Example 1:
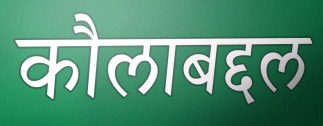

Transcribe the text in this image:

कौलाबद्दल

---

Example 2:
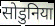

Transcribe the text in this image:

सोडुनिया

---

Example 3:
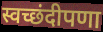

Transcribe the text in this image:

स्वच्छंदीपणा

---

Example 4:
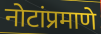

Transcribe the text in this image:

नोटांप्रमाणे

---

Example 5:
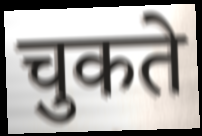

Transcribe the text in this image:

चुकते